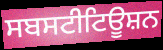
ਸਬਸਟੀਟਿਊਸ਼ਨ